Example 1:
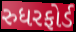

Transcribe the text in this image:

રુધરફોર્ડ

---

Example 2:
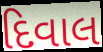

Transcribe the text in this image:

દિવાલ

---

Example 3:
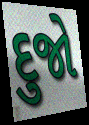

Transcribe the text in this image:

દુજો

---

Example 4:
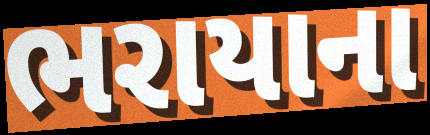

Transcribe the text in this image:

ભરાયાના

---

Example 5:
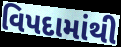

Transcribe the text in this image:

વિપદામાંથી